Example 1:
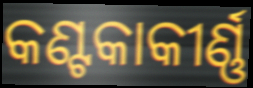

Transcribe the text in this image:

କଣ୍ଟକାକୀର୍ଣ୍ଣ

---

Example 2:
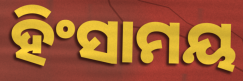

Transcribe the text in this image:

ହିଂସାମୟ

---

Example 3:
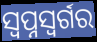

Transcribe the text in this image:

ସ୍ୱପ୍ନସ୍ୱର୍ଗର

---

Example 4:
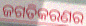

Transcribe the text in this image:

ଜଗତିକରଣର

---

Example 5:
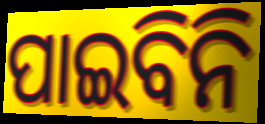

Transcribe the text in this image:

ପାଇବିନି